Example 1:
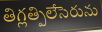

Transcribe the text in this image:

తిగ్లత్పిలేసెరును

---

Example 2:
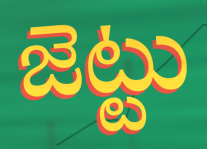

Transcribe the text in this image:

జెట్టు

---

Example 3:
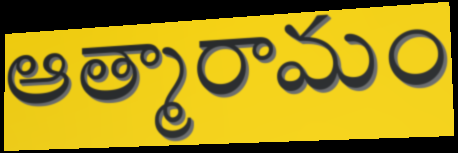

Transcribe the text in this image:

ఆత్మారామం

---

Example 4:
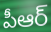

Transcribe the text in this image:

పీఆర్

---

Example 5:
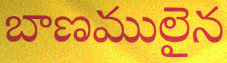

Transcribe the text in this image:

బాణములైన